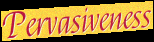
Pervasiveness